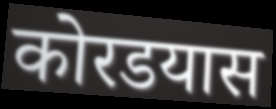
कोरडयास